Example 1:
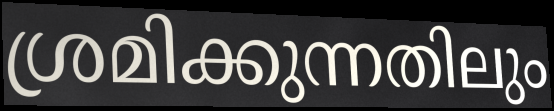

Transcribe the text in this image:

ശ്രമിക്കുന്നതിലും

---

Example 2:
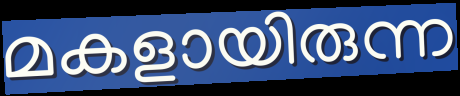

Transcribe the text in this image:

മകളായിരുന്ന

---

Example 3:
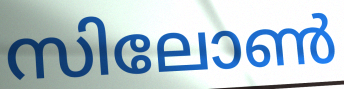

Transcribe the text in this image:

സിലോൺ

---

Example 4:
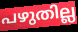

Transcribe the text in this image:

പഴുതില്ല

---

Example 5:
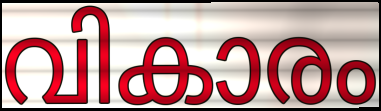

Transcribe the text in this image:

വികാരം